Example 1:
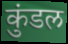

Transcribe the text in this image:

कुंडल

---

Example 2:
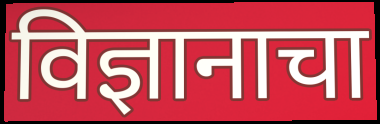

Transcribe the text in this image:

विज्ञानाचा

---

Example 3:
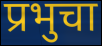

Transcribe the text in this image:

प्रभुचा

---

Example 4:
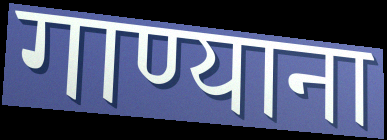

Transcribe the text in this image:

गाण्याना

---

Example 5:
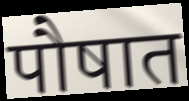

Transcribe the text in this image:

पौषात